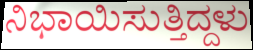
ನಿಭಾಯಿಸುತ್ತಿದ್ದಳು